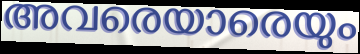
അവരെയാരെയും